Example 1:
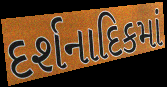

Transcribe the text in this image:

દર્શનાદિકમાં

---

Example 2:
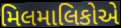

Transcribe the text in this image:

મિલમાલિકોએ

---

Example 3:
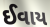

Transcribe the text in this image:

ઈવાય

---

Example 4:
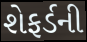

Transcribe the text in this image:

શેફર્ડની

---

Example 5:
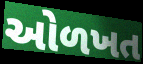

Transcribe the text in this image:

ઓળખત